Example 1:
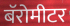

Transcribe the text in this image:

बॅरोमीटर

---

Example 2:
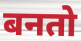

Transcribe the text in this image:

बनतो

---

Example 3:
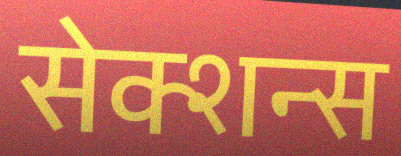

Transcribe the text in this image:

सेक्शन्स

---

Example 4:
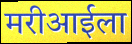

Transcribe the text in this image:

मरीआईला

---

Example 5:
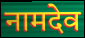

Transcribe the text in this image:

नामदेव